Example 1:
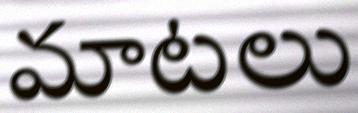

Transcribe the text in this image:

మాటలు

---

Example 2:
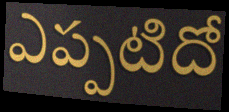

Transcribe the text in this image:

ఎప్పటిదో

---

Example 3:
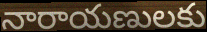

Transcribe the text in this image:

నారాయణులకు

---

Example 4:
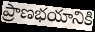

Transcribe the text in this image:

ప్రాణభయానికి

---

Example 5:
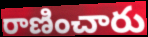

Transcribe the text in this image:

రాణించారు